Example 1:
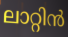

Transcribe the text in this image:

ലാറ്റിൻ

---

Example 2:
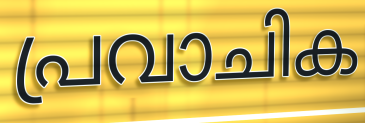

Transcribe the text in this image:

പ്രവാചിക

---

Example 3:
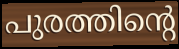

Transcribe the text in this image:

പുരത്തിന്റെ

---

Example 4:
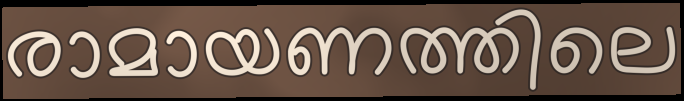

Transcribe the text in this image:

രാമായണത്തിലെ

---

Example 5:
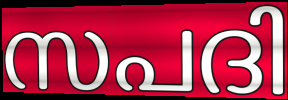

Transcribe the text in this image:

സപദി